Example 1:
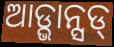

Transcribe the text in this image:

ଆଡ୍ଭାନ୍ସଡ୍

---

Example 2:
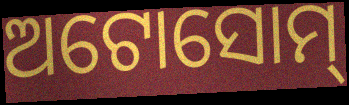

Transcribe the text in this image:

ଅଟୋସୋମ୍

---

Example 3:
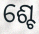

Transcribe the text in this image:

ଶ୍ଚେ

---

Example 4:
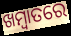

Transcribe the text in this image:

ଖମ୍ବାତରେ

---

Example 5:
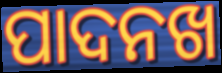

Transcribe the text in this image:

ପାଦନଖ